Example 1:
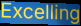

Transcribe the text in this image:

Excelling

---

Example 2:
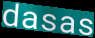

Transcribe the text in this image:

dasas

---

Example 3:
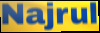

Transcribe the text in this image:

Najrul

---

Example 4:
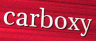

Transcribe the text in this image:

carboxy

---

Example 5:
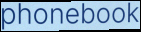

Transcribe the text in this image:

phonebook